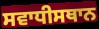
ਸਵਾਧੀਸਥਾਨ